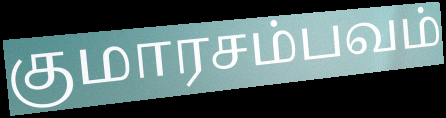
குமாரசம்பவம்